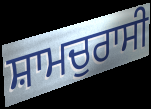
ਸ਼ਾਮਚੁਰਾਸੀ